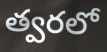
త్వరలో